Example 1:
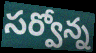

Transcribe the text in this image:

సర్వోన్న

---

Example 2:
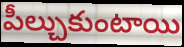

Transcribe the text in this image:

పీల్చుకుంటాయి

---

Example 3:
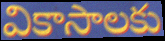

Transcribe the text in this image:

వికాసాలకు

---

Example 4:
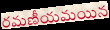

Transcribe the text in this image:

రమణీయమయిన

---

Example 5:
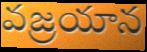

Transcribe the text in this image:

వజ్రయాన